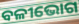
ବଳୀଭୋଗ